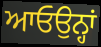
ਆਓਉਨ੍ਹਾਂ